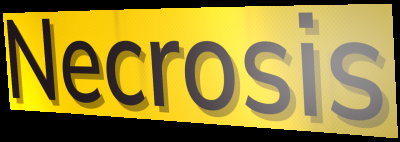
Necrosis